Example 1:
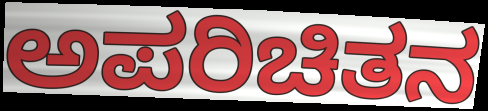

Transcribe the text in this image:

ಅಪರಿಚಿತನ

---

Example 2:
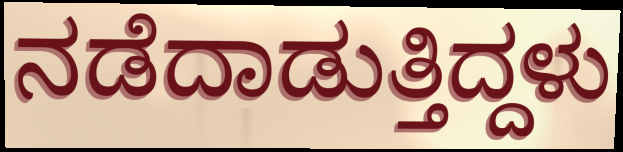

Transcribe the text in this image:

ನಡೆದಾಡುತ್ತಿದ್ದಳು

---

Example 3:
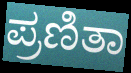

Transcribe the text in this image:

ಪ್ರಣಿತಾ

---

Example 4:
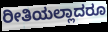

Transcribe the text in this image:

ರೀತಿಯಲ್ಲಾದರೂ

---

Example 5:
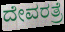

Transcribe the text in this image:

ದೇವರತ್ರೆ